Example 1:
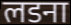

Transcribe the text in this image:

लडना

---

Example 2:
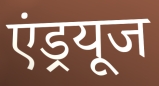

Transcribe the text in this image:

एंड्रयूज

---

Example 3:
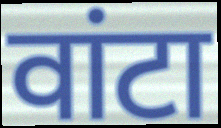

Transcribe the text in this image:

वांटा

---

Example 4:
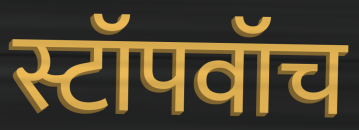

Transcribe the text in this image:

स्टॉपवॉच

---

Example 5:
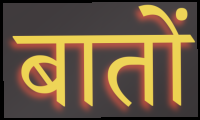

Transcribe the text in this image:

बातों